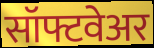
सॉफ्टवेअर